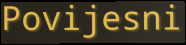
Povijesni